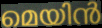
മെയിൻ